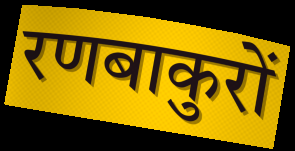
रणबाकुरों